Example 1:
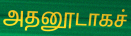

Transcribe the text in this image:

அதனூடாகச்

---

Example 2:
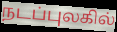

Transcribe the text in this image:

நடப்புலகில்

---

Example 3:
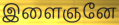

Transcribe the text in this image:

இளைஞனே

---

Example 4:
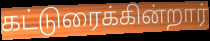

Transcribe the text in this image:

கட்டுரைக்கின்றார்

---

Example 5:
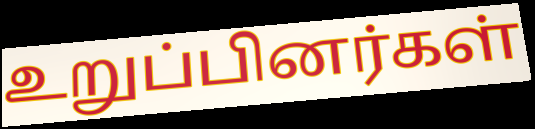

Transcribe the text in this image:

உறுப்பினர்கள்